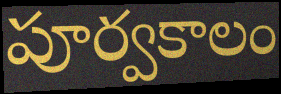
పూర్వకాలం